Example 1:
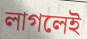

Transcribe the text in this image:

লাগলেই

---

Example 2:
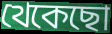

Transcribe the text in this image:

থেকেছো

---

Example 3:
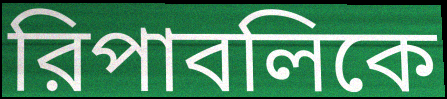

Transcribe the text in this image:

রিপাবলিকে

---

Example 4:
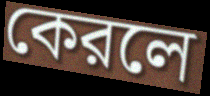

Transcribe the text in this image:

কেরলে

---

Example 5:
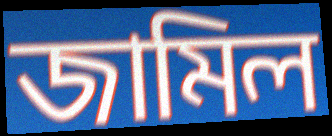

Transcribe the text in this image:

জামিল